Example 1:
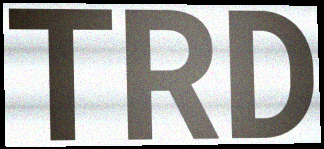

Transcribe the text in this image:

TRD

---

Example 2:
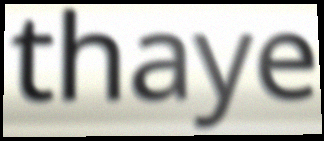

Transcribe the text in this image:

thaye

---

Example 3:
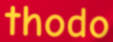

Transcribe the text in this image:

thodo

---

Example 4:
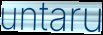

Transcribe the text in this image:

untaru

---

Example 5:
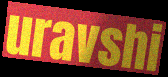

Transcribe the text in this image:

uravshi